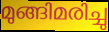
മുങ്ങിമരിച്ചു